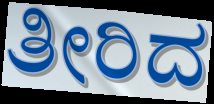
ತೀರಿದ